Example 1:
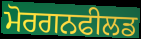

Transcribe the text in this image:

ਮੋਰਗਨਫੀਲਡ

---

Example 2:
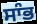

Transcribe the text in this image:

ਸਾੰਭ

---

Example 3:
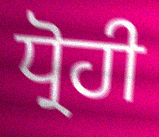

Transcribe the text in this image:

ਧ੍ਰੋਹੀ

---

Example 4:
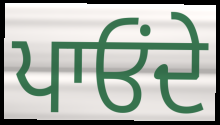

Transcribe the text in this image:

ਪਾਓਂਦੇ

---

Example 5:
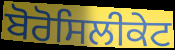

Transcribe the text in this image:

ਬੋਰੋਸਿਲੀਕੇਟ